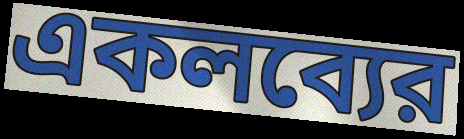
একলব্যের